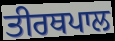
ਤੀਰਥਪਾਲ